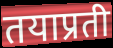
तयाप्रती